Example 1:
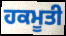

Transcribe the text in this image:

ਹਕਮੂਤੀ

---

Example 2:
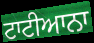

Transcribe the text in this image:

ਟਾਟੀਆਨਾ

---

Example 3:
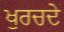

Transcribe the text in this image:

ਖੁਰਚਦੇ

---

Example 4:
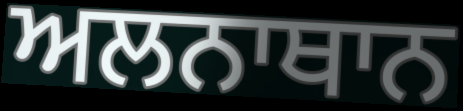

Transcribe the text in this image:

ਅਲਨਾਥਾਨ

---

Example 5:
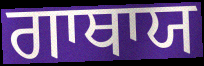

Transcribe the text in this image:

ਗਾਥਾਯ